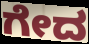
ಗೇದ